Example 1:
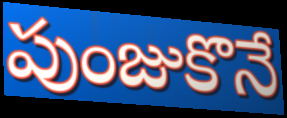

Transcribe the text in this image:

పుంజుకొనే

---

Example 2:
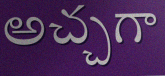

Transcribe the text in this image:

అచ్చగా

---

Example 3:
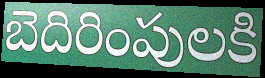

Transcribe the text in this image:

బెదిరింపులకి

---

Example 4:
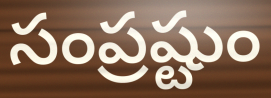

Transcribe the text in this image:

సంప్రష్టుం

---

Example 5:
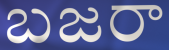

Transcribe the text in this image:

బజరా